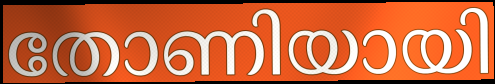
തോണിയായി